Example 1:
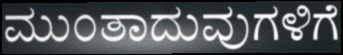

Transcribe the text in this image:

ಮುಂತಾದುವುಗಳಿಗೆ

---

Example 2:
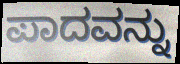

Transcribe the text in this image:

ಪಾದವನ್ನು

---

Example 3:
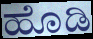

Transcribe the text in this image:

ಹೊಡಿ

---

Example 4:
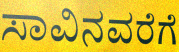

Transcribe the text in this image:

ಸಾವಿನವರೆಗೆ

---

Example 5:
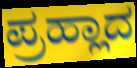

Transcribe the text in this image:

ಪ್ರಹ್ಲಾದ